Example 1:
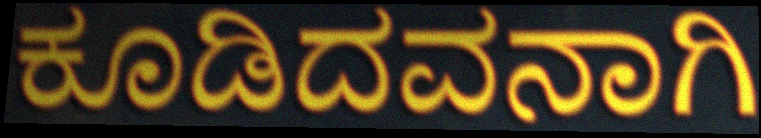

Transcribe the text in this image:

ಕೂಡಿದವನಾಗಿ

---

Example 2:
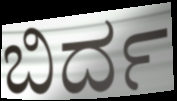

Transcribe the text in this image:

ಬಿರ್ದ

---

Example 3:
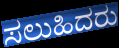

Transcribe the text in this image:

ಸಲುಹಿದರು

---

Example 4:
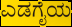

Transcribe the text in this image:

ಎಡಗೈಯ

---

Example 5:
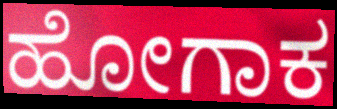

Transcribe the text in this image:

ಹೋಗಾಕ